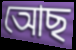
আেছ